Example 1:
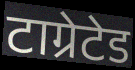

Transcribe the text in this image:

टाग्रेटेड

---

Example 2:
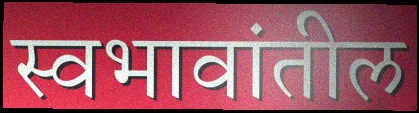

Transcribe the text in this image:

स्वभावांतील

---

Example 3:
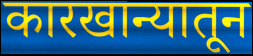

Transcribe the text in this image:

कारखान्यातून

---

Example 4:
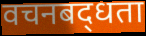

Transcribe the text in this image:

वचनबद्धता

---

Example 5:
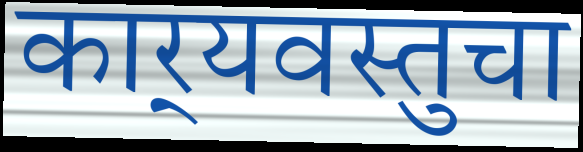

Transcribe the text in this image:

कार्यवस्तुचा